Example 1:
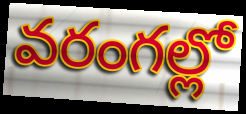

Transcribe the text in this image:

వరంగల్లో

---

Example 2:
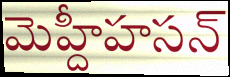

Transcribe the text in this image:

మెహ్దీహసన్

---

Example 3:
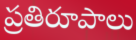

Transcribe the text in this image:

ప్రతిరూపాలు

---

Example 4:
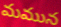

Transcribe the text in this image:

మమున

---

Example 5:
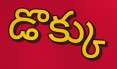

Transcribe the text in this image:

డొక్కు